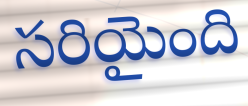
సరియైంది